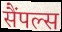
सैंपल्स